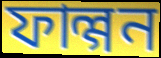
ফাল্গন